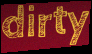
dirty